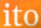
ito